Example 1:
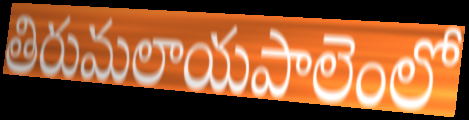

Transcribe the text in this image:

తిరుమలాయపాలెంలో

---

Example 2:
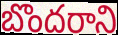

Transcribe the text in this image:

బొందరాని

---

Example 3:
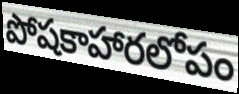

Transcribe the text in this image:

పోషకాహారలోపం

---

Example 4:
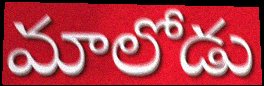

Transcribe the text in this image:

మాలోడు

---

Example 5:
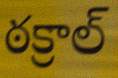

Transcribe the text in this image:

ఠక్రాల్